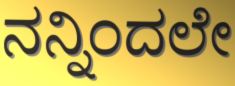
ನನ್ನಿಂದಲೇ